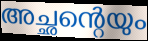
അച്ഛന്റെയും